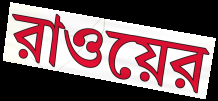
রাওয়ের